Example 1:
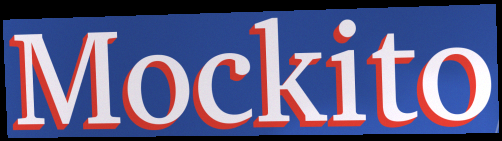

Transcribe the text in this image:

Mockito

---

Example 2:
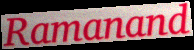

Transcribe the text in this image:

Ramanand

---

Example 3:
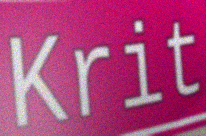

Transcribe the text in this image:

Krit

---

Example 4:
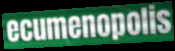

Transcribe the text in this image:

ecumenopolis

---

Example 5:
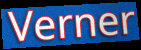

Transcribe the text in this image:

Verner